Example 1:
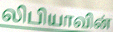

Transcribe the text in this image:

லிபியாவின்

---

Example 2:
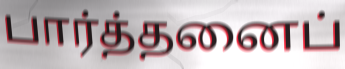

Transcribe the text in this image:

பார்த்தனைப்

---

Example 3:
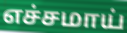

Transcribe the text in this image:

எச்சமாய்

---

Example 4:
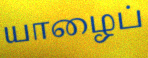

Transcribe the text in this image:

யாழைப்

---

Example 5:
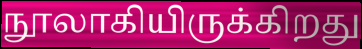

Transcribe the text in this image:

நூலாகியிருக்கிறது